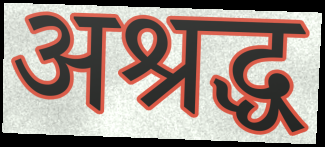
अश्रद्ध